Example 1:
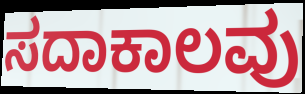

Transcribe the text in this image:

ಸದಾಕಾಲವು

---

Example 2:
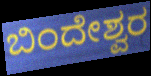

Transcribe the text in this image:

ಬಿಂದೇಶ್ವರ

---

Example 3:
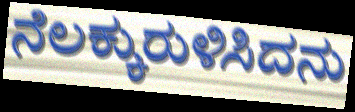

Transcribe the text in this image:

ನೆಲಕ್ಕುರುಳಿಸಿದನು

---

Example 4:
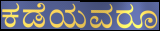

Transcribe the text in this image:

ಕಡೆಯವರೂ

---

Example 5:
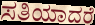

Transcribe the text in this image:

ಸತಿಯಾದರೆ